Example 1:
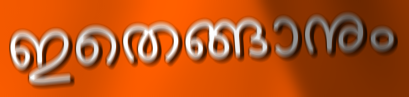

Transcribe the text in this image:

ഇതെങ്ങാനും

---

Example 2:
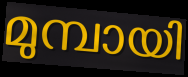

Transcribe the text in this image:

മുമ്പായി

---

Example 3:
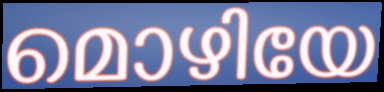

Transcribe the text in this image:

മൊഴിയേ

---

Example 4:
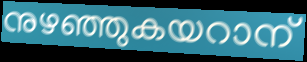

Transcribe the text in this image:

നുഴഞ്ഞുകയറാന്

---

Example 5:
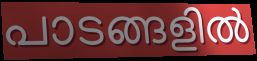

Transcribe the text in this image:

പാടങ്ങളിൽ